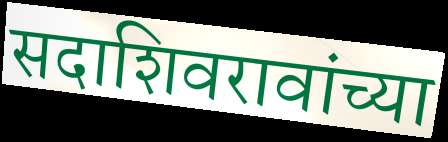
सदाशिवरावांच्या